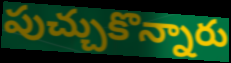
పుచ్చుకొన్నారు